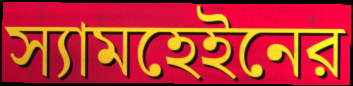
স্যামহেইনের